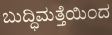
ಬುದ್ಧಿಮತ್ತೆಯಿಂದ